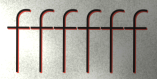
ffffff